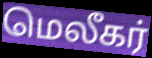
மெலீகர்